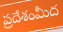
ప్రదేశంమీద